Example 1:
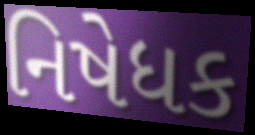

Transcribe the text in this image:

નિષેધક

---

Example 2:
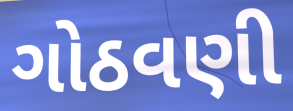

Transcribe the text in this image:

ગોઠવણી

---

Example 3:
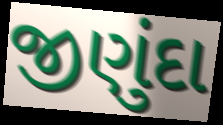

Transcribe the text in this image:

જીણુંદા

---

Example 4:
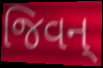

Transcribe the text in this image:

જિવન્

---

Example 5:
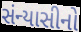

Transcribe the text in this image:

સંન્યાસીનો